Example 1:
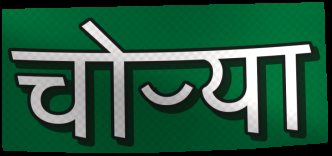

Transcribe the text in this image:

चोऱ्या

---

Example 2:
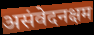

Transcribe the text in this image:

असंवेदनक्षम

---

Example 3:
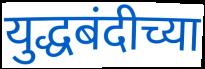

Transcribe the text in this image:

युद्धबंदीच्या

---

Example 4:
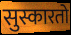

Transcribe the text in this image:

सुस्कारतो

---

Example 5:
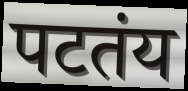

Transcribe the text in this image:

पटतंय